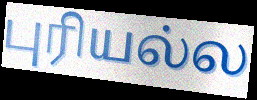
புரியல்ல